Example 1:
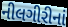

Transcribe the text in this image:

નીલગીરીનાં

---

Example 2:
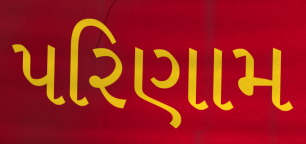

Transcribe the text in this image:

પરિણામ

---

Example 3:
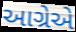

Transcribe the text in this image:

આગ્રેએ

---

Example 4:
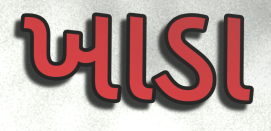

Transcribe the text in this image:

ખાડા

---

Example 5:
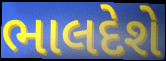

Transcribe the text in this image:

ભાલદેશે